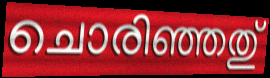
ചൊരിഞ്ഞതു്